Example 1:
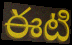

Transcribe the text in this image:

ఈటి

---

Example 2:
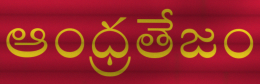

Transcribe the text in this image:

ఆంధ్రతేజం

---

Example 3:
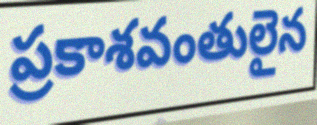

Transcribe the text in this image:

ప్రకాశవంతులైన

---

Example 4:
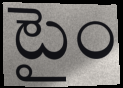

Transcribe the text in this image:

టైం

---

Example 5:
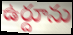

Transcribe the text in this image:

ఉర్దూను